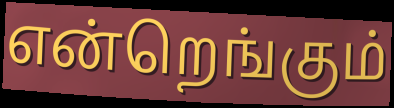
என்றெங்கும்